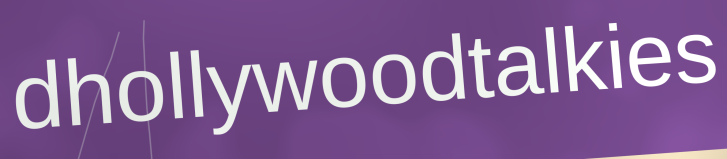
dhollywoodtalkies